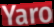
Yaro